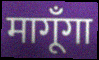
मागूँगा